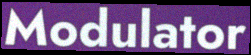
Modulator